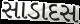
સાડાદસ